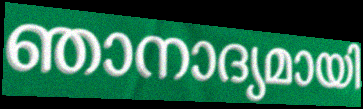
ഞാനാദ്യമായി